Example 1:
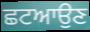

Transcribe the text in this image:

ਛਟਆਉਣ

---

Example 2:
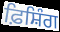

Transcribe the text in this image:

ਫ਼ਿਸ਼ਿੰਗ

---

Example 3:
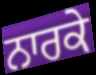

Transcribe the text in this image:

ਨਾਰਕੇ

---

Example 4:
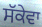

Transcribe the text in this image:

ਸੱਕੇਵਾ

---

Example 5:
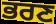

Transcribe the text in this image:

ਭਰਣ